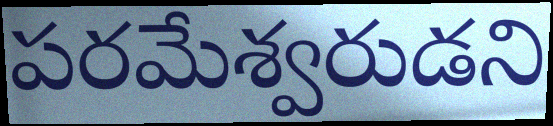
పరమేశ్వరుడని